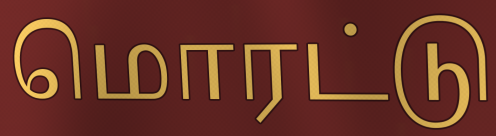
மொரட்டு